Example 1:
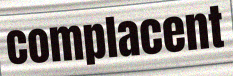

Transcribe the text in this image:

complacent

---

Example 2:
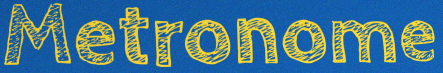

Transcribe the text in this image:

Metronome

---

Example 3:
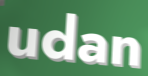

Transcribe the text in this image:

udan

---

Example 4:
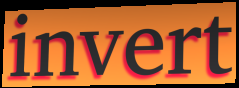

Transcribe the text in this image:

invert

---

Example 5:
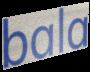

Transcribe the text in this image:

bala